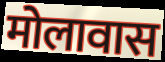
मोलावास